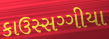
કાઉસ્સગ્ગીયા